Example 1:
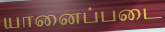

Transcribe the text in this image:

யானைப்படை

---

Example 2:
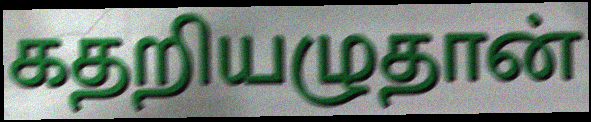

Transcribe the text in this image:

கதறியழுதான்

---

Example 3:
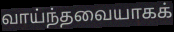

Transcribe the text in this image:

வாய்ந்தவையாகக்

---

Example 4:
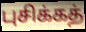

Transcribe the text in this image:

புசிக்கத்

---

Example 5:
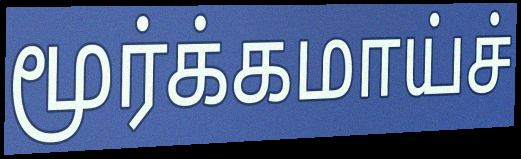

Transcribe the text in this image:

மூர்க்கமாய்ச்